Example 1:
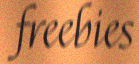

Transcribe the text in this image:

freebies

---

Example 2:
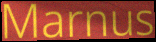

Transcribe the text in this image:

Marnus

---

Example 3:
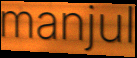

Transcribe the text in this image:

manjul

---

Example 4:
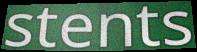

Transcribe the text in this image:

stents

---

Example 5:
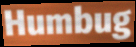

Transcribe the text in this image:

Humbug